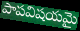
పాపవిషయమై